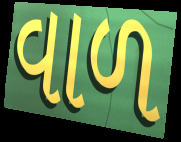
વાળ